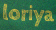
loriya